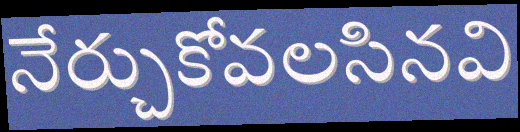
నేర్చుకోవలసినవి